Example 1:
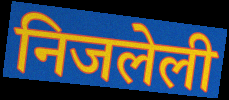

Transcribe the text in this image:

निजलेली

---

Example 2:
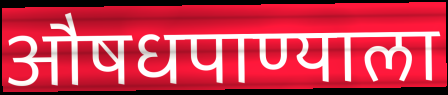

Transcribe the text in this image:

औषधपाण्याला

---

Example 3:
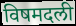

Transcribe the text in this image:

विषमदली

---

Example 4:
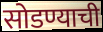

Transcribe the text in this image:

सोडण्याची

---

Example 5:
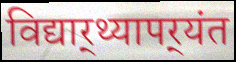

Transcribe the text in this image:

विद्यार्थ्यापर्यंत